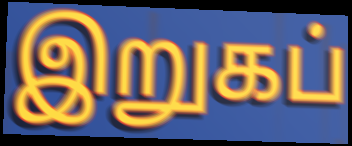
இறுகப்